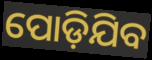
ପୋଡ଼ିଯିବ